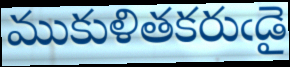
ముకుళితకరుఁడై